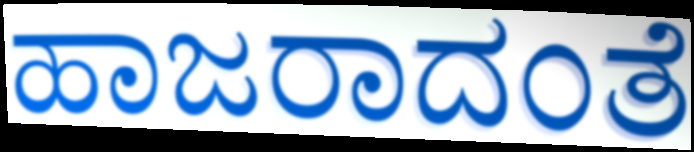
ಹಾಜರಾದಂತೆ